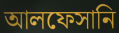
আলফেসানি